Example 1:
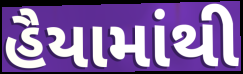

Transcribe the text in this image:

હૈયામાંથી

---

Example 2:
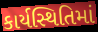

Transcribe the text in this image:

કાર્યસ્થિતિમાં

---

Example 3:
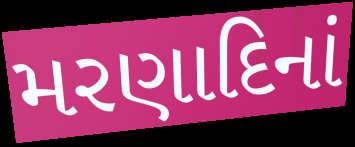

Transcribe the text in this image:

મરણાદિનાં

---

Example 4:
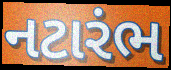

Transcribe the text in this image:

નટારંભ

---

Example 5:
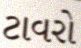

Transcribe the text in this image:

ટાવરો